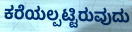
ಕರೆಯಲ್ಪಟ್ಟಿರುವುದು